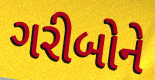
ગરીબોને